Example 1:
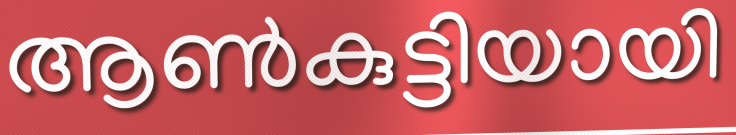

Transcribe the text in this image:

ആൺകുട്ടിയായി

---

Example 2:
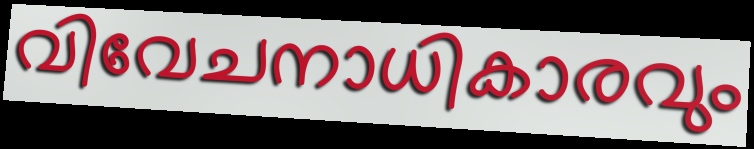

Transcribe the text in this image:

വിവേചനാധികാരവും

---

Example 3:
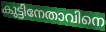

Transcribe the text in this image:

കുട്ടിനേതാവിനെ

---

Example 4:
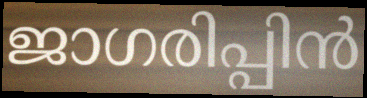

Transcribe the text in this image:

ജാഗരിപ്പിൻ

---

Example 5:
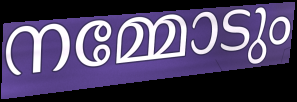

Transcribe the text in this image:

നമ്മോടും